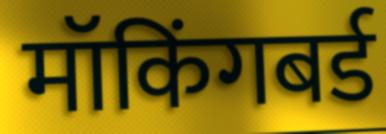
मॉकिंगबर्ड